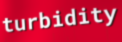
turbidity